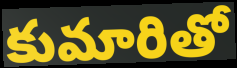
కుమారితో